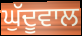
ਘੁੱਦੂਵਾਲ